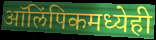
ऑलिंपिकमध्येही